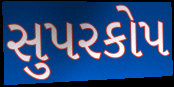
સુપરકોપ